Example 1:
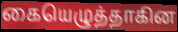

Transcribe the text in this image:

கையெழுத்தாகின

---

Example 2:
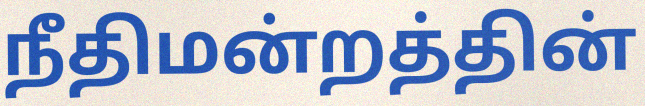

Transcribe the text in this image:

நீதிமன்றத்தின்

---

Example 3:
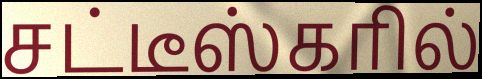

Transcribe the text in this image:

சட்டீஸ்கரில்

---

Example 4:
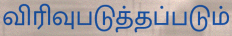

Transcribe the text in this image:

விரிவுபடுத்தப்படும்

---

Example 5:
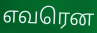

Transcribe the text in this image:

எவரென